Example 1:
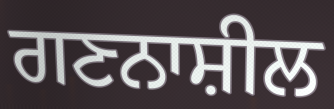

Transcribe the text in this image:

ਗਣਨਾਸ਼ੀਲ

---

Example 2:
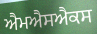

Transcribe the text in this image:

ਐਮਐਸਐਕਸ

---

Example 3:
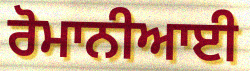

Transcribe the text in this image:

ਰੋਮਾਨੀਆਈ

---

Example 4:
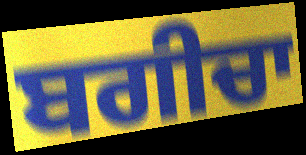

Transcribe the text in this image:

ਬਗੀਚਾ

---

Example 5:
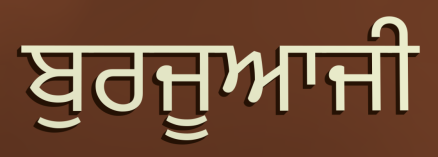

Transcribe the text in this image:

ਬੁਰਜੂਆਜੀ